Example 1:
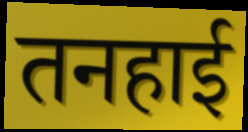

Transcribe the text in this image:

तनहाई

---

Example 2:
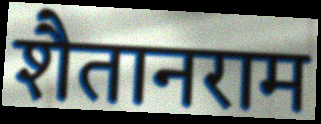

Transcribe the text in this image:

शैतानराम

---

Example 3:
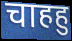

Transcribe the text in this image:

चाहहु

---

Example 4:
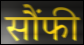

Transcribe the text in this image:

सौंफी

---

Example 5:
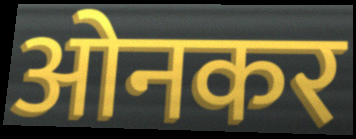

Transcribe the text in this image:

ओनकर